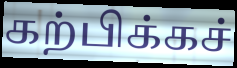
கற்பிக்கச்